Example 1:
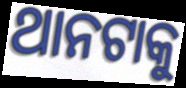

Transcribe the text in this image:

ଥାନଟାକୁ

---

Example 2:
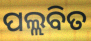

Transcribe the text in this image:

ପଲ୍ଲବିତ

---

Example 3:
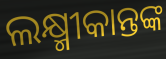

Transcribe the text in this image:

ଲକ୍ଷ୍ମୀକାନ୍ତଙ୍କ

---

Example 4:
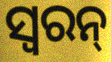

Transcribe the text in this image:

ସ୍ୱରନ୍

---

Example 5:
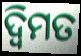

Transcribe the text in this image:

ଦ୍ୱିମତ